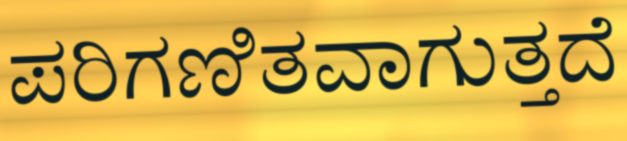
ಪರಿಗಣಿತವಾಗುತ್ತದೆ